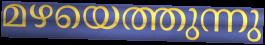
മഴയെത്തുന്നു